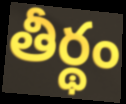
తీర్థం